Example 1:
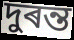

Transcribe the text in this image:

দুৰন্ত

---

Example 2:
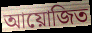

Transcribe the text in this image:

আয়োজিত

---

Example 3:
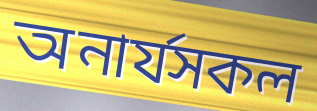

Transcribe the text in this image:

অনাৰ্যসকল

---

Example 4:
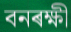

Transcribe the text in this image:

বনৰক্ষী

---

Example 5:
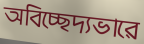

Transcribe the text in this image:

অবিচ্ছেদ্যভাৱে